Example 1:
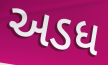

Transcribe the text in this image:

અડધ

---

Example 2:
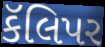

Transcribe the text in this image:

કૅલિપર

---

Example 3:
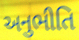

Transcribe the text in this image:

અનુભીતિ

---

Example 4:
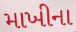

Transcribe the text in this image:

માખીના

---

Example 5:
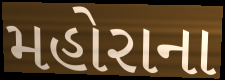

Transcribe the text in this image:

મહોરાના